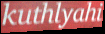
kuthlyahi